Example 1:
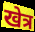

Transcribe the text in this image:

खेत्र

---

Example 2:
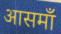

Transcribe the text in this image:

आसमाँ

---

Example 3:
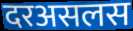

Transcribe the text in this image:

दरअसलस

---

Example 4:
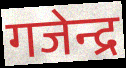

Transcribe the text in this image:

गजेन्द्र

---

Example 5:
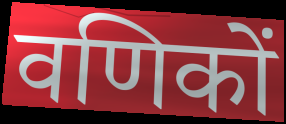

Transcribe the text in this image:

वणिकों